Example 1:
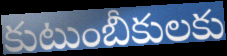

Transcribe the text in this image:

కుటుంబీకులకు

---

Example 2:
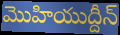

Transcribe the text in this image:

మొహియుద్దీన్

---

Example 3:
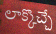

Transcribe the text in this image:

లాక్కొచ్చే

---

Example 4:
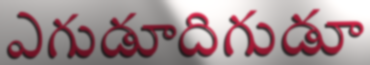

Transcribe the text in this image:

ఎగుడూదిగుడూ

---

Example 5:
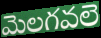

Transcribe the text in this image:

మెలగవలె